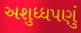
અશુધ્ધપણું